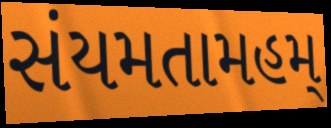
સંયમતામહમ્